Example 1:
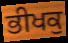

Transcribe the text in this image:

ਭੀਖਕੁ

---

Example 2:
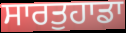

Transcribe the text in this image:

ਸਾਰਤੁਹਾਡਾ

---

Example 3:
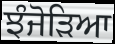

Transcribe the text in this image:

ਝੰਜੋੜਿਆ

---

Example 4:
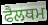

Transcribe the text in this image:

ਫੈਲਥਮ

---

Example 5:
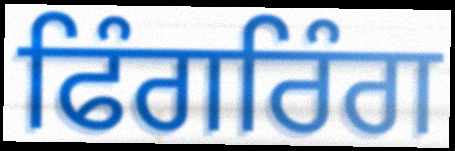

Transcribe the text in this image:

ਫਿੰਗਰਿੰਗ